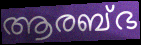
ആരബ്ഭ